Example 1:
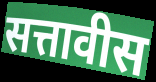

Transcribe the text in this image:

सत्तावीस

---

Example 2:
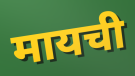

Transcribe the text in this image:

मायची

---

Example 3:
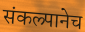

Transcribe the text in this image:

संकल्पानेच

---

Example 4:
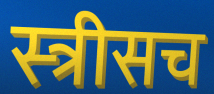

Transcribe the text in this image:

स्त्रीसच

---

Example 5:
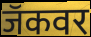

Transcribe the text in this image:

जॅकवर